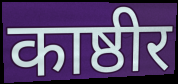
काष्ठीर